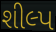
શીલ્પ